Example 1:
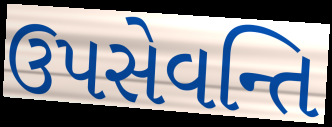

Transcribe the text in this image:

ઉપસેવન્તિ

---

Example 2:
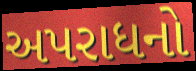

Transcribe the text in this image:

અપરાધનો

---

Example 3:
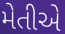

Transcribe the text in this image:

મેતીએ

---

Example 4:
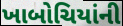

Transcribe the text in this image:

ખાબોચિયાંની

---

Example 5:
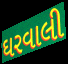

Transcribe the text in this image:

ઘરવાલી